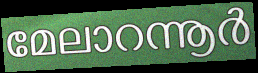
മേലാറന്നൂർ